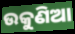
ଉକୁଣିଆ